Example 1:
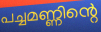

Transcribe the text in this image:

പച്ചമണ്ണിന്റെ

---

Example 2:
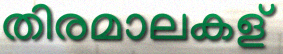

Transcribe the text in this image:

തിരമാലകള്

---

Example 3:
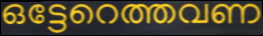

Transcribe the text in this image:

ഒട്ടേറെത്തവണ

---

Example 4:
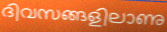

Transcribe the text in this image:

ദിവസങ്ങളിലാണു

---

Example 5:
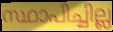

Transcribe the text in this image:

സ്ഥാപിച്ചില്ല